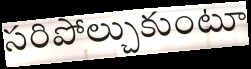
సరిపోల్చుకుంటూ